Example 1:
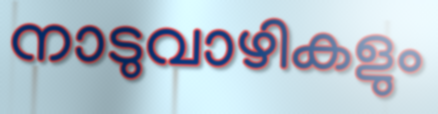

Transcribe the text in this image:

നാടുവാഴികളും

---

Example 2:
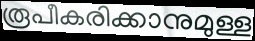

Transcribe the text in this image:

രൂപീകരിക്കാനുമുള്ള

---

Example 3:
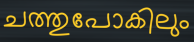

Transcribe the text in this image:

ചത്തുപോകിലും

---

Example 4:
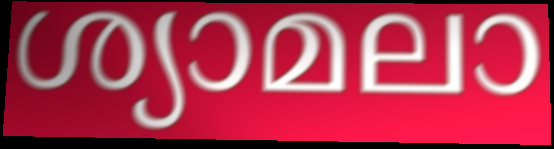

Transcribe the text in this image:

ശ്യാമലാ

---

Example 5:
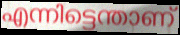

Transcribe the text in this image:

എന്നിട്ടെന്താണ്